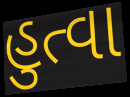
હુત્વા